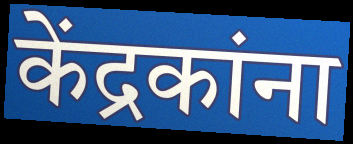
केंद्रकांना